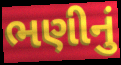
ભણીનું